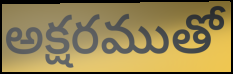
అక్షరముతో